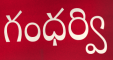
గంధర్వి